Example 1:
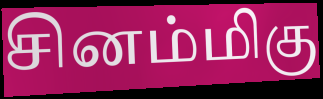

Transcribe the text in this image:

சினம்மிகு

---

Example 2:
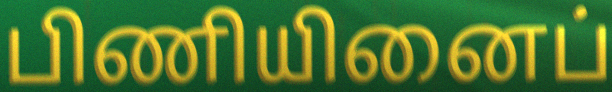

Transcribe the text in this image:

பிணியினைப்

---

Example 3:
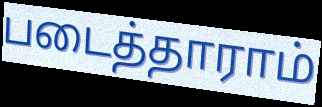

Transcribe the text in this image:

படைத்தாராம்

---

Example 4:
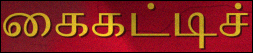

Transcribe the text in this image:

கைகட்டிச்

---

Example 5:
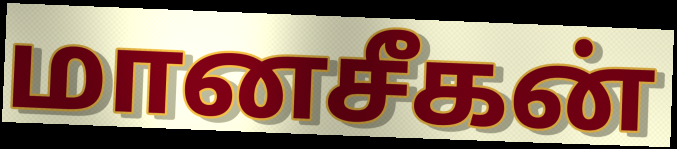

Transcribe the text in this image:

மானசீகன்